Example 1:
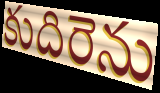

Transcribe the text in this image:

కుదిరెను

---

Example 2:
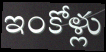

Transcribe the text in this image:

ఇంకోళ్లు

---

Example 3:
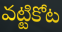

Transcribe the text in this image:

వట్టికోట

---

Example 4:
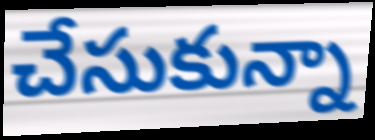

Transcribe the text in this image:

చేసుకున్నా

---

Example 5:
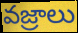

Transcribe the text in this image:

వజ్రాలు